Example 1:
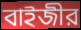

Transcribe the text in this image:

বাইজীর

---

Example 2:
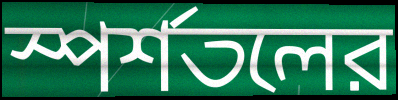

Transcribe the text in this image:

স্পর্শতলের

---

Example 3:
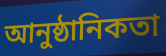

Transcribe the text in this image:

আনুষ্ঠানিকতা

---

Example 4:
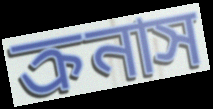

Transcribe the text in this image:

ক্রনাস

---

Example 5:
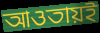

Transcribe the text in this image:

আওতায়ই